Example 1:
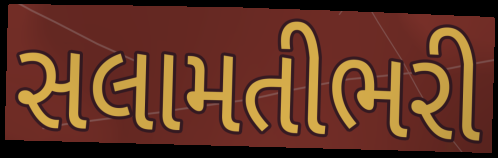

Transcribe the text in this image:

સલામતીભરી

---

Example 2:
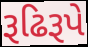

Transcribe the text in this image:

રૂઢિરૂપે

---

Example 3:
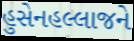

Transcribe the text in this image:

હુસેનહલ્લાજને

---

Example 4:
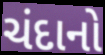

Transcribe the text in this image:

ચંદાનો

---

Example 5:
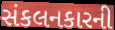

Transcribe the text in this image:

સંકલનકારની